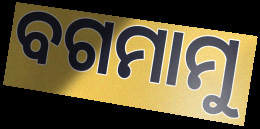
ବଗମାମୁ